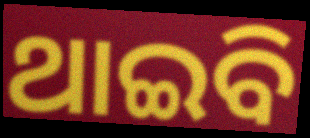
ଥାଇବି